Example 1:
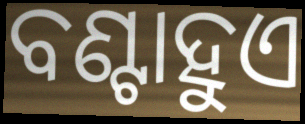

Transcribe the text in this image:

ବଣ୍ଟାହୁଏ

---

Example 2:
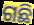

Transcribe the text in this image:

ଗଛି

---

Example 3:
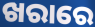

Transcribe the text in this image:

ଖରାରେ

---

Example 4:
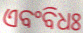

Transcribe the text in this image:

ଏବଂବିଧଃ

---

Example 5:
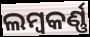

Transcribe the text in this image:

ଲମ୍ୱକର୍ଣ୍ଣ